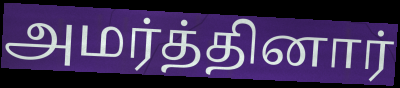
அமர்த்தினார்